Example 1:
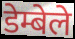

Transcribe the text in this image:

डेम्बेले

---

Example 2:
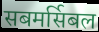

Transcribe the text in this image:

सबमर्सिबल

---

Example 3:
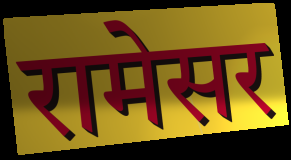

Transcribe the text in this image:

रामेसर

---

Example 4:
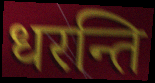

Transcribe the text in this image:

धरन्ति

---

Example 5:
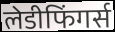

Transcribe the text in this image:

लेडीफिंगर्स